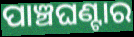
ପାଞ୍ଚଘଣ୍ଟାର